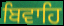
ਬਿਵਾਹਿ